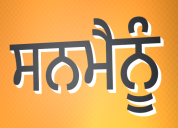
ਸਨਮੈਨੂੰ